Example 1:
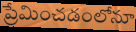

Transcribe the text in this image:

ప్రేమించడంలోనూ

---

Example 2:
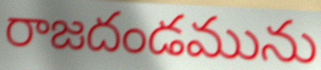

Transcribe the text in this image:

రాజదండమును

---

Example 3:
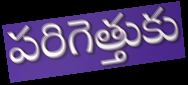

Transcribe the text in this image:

పరిగెత్తుకు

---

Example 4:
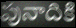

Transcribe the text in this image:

పునాదికి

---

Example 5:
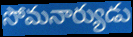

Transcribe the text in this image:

సోమనార్యుడు